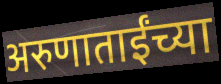
अरुणाताईंच्या